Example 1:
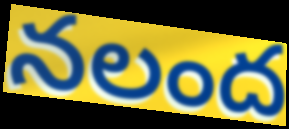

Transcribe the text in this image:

నలంద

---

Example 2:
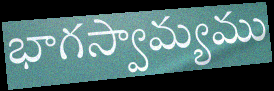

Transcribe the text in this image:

భాగస్వామ్యము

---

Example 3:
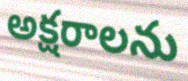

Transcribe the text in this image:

అక్షరాలను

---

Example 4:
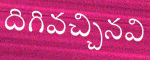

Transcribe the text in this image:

దిగివచ్చినవి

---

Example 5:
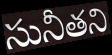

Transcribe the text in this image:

సునీతని